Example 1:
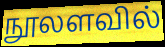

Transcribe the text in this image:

நூலளவில்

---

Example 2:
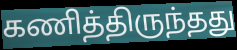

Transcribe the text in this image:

கணித்திருந்தது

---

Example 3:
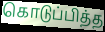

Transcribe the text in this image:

கொடுப்பித்த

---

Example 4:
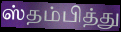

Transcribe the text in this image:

ஸ்தம்பித்து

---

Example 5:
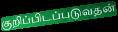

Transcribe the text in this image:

குறிப்பிடப்படுவதன்